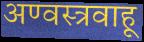
अण्वस्त्रवाहू